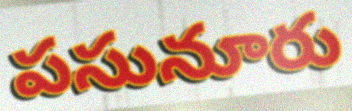
పసునూరు